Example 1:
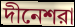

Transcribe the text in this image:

দীনেশরা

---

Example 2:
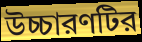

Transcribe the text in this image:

উচ্চারণটির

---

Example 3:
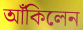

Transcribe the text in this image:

আঁকিলেন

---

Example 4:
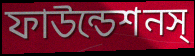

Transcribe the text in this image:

ফাউন্ডেশনস্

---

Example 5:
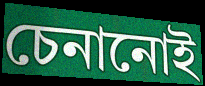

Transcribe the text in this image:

চেনানোই